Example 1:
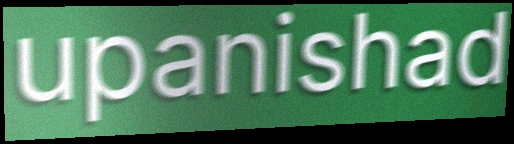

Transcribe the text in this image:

upanishad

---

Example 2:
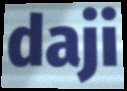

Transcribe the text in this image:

daji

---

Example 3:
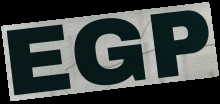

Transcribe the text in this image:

EGP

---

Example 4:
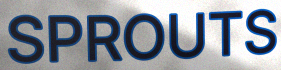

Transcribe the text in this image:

SPROUTS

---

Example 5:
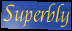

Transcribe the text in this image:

Superbly